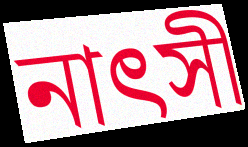
নাৎসী